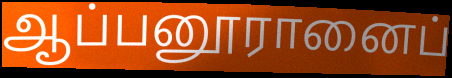
ஆப்பனூரானைப்